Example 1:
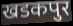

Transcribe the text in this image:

खडकपुर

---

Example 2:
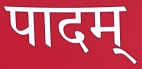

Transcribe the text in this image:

पादम्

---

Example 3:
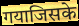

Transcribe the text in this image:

गयाजिसके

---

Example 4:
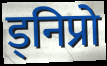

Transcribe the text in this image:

ड्निप्रो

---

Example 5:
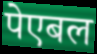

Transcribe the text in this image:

पेएबल